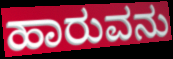
ಹಾರುವನು